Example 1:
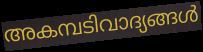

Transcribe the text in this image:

അകമ്പടിവാദ്യങ്ങൾ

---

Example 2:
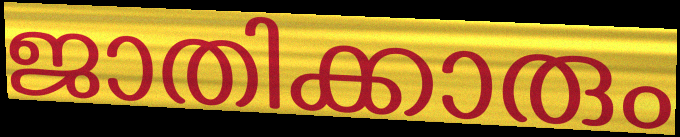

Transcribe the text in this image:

ജാതിക്കാരും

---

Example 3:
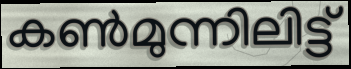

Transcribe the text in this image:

കൺമുന്നിലിട്ട്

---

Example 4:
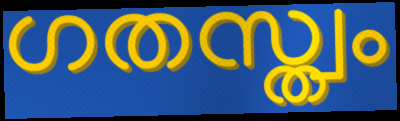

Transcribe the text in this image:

ഗതസ്ത്വം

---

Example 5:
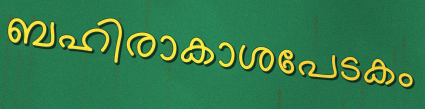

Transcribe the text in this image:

ബഹിരാകാശപേടകം